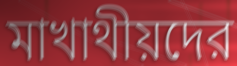
মাখাথীয়দের